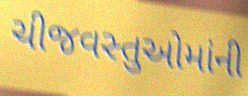
ચીજવસ્તુઓમાંની